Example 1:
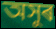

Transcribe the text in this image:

অসুৰ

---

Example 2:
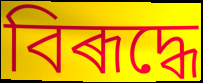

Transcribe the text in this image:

বিৰূদ্ধে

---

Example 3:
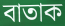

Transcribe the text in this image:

বাতাক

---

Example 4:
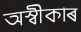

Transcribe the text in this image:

অস্বীকাৰ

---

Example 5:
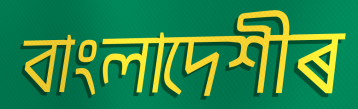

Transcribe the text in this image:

বাংলাদেশীৰ